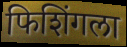
फिशिंगला